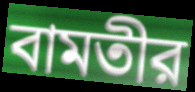
বামতীর